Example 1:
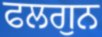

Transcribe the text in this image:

ਫਲਗੁਨ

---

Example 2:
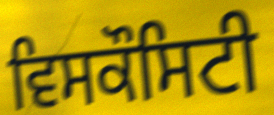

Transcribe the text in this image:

ਵਿਸਕੌਸਿਟੀ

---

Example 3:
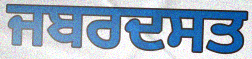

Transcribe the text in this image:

ਜਬਰਦਸਤ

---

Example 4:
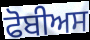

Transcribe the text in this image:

ਫੋਬੀਅਸ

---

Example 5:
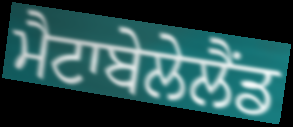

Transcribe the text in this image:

ਮੈਟਾਬੇਲੇਲੈਂਡ